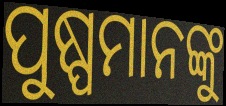
ପୁଷ୍ପମାନଙ୍କୁ